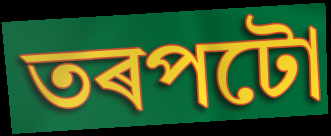
তৰপটো